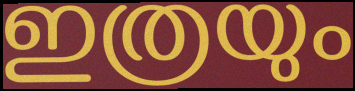
ഇത്രയും